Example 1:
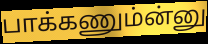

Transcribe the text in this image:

பாக்கணும்ன்னு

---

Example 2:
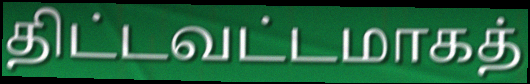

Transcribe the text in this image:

திட்டவட்டமாகத்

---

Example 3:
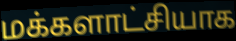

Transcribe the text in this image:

மக்களாட்சியாக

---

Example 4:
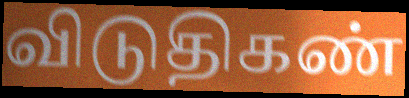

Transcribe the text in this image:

விடுதிகண்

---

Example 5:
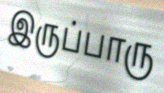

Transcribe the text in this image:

இருப்பாரு